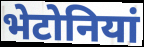
भेटोनियां